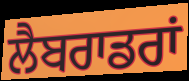
ਲੈਬਰਾਡਰਾਂ